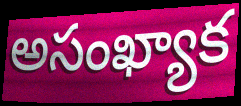
అసంఖ్యాక